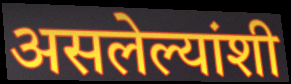
असलेल्यांशी